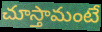
చూస్తామంటే